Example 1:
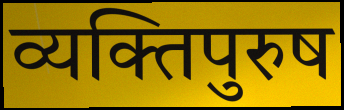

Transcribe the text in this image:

व्यक्तिपुरुष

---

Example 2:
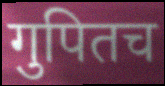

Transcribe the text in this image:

गुपितच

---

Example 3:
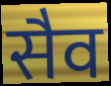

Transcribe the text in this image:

सैव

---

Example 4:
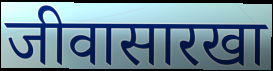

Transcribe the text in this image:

जीवासारखा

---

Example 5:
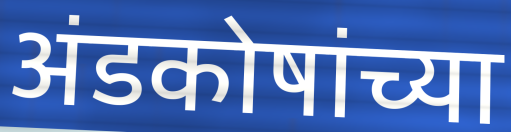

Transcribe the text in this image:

अंडकोषांच्या